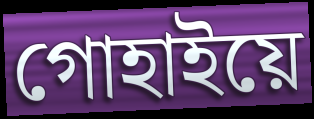
গোহাইয়ে